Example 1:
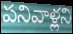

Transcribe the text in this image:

పనివాళ్లని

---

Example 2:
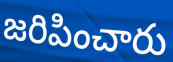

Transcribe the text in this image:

జరిపించారు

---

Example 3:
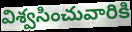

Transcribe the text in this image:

విశ్వసించువారికి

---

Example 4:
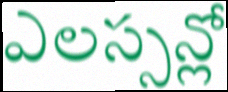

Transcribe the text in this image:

ఎలస్సన్లో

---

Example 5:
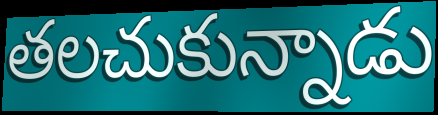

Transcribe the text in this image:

తలచుకున్నాడు